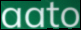
aato